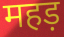
महड़